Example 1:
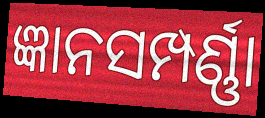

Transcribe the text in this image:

ଜ୍ଞାନସମ୍ପର୍ଣ୍ଣା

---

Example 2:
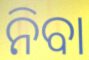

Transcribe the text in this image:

ନିବା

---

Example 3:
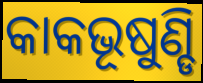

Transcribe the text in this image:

କାକଭୂଷୁଣ୍ଡି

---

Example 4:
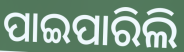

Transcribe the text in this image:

ପାଇପାରିଲି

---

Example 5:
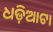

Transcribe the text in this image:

ଧଡ଼ିଆଟା